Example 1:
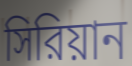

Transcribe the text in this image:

সিরিয়ান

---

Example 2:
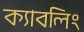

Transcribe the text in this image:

ক্যাবলিং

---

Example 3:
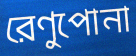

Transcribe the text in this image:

রেণুপোনা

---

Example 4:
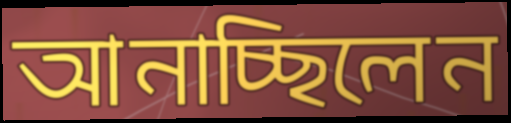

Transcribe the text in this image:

আনাচ্ছিলেন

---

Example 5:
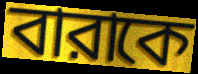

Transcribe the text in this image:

বারাকে